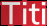
Titi